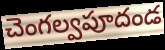
చెంగల్వపూదండ